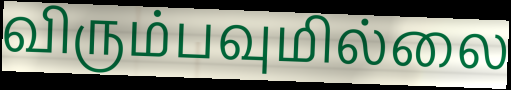
விரும்பவுமில்லை